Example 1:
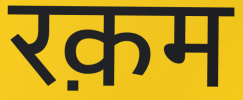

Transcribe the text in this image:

रक़म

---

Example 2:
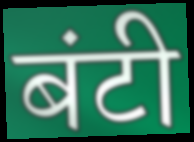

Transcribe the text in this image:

बंटी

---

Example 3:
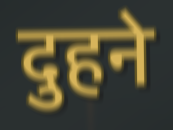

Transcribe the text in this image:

दुहने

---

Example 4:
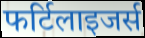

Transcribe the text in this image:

फर्टिलाइजर्स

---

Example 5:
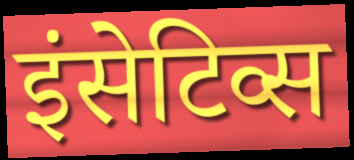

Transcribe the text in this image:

इंसेटिव्स